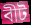
বীট